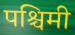
पश्चिमी